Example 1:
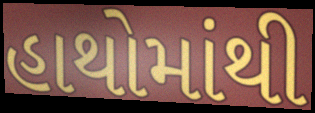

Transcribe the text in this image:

હાથોમાંથી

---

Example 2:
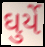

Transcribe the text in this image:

ઘુર્યે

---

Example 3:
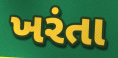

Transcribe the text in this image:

ખરંતા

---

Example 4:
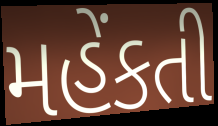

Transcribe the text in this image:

મહેંકતી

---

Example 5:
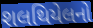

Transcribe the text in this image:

શલથિયેલનો